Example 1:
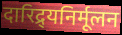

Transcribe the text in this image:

दारिद्र्यनिर्मूलन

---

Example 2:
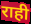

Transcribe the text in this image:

राही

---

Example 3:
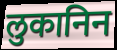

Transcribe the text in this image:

लुकानिन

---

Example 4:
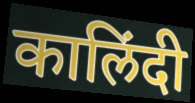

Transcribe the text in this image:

कालिंदी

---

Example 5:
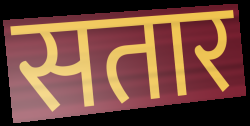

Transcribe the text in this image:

सतार